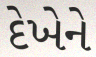
દેખેને